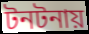
টনটনায়